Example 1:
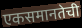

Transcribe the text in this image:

एकसमानतेची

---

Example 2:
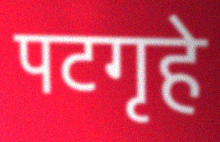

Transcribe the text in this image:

पटगृहे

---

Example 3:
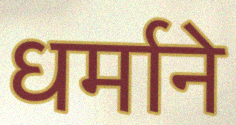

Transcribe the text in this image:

धर्माने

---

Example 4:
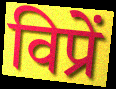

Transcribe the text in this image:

विप्रें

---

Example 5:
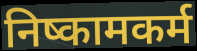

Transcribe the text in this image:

निष्कामकर्म